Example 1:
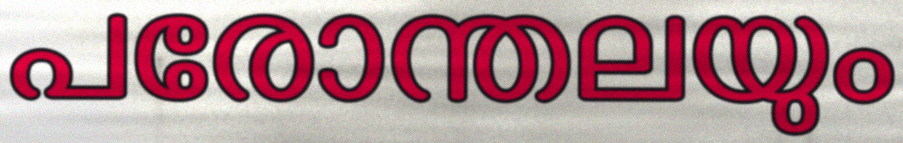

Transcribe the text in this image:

പരോന്തലയും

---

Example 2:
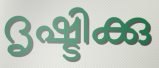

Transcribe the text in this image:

ദൃഷ്ടിക്കു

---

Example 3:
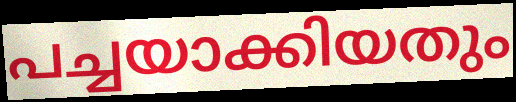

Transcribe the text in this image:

പച്ചയാക്കിയതും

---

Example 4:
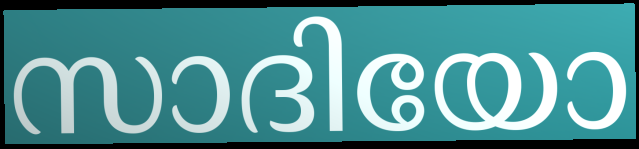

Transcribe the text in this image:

സാദിയോ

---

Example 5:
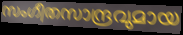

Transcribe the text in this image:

സംഗീതസാന്ദ്രവുമായ